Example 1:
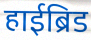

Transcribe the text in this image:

हाईब्रिड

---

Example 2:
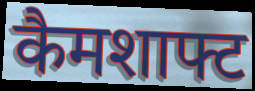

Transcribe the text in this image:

कैमशाफ्ट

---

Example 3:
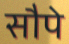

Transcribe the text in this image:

सौपे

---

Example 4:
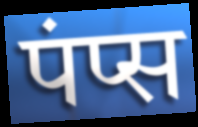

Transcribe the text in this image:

पंप्स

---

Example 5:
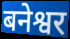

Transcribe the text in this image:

बनेश्वर